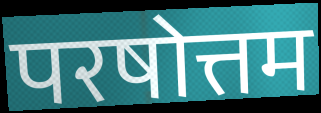
परषोत्तम